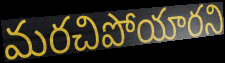
మరచిపోయారని